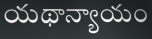
యథాన్యాయం